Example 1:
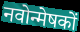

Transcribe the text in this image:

नवोन्मेषकों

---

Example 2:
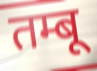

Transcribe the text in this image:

तम्बू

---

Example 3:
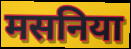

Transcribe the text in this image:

मसनिया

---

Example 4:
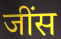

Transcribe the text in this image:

जींस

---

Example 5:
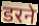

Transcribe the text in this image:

डरने